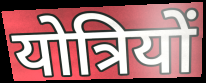
योत्रियों